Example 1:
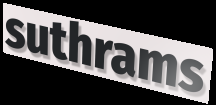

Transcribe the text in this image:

suthrams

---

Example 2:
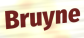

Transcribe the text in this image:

Bruyne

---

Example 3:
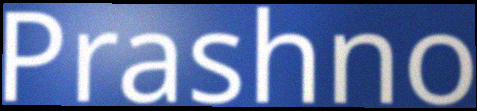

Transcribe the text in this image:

Prashno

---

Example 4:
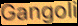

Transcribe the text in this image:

Gangoli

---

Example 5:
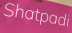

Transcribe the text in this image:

Shatpadi